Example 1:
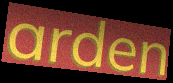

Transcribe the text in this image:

arden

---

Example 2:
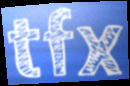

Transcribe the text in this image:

tfx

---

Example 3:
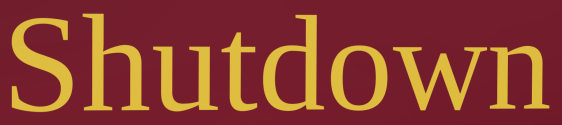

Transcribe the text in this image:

Shutdown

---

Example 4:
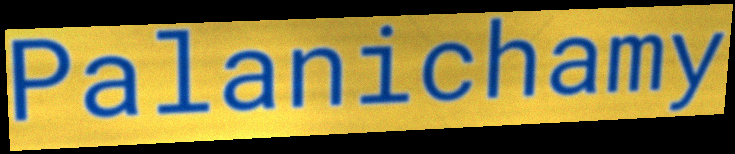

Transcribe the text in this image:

Palanichamy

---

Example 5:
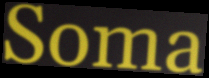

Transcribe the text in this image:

Soma